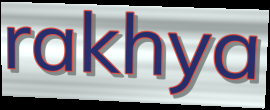
rakhya